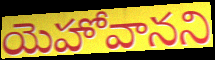
యెహోవానని